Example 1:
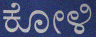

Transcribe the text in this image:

ಕೋಳಿ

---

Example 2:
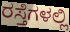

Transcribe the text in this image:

ರಸ್ತೆಗಳಲ್ಲಿ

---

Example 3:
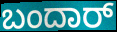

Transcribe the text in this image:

ಬಂದಾರ್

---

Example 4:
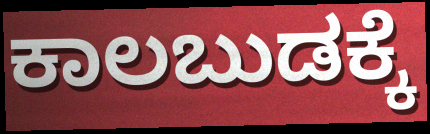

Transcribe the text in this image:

ಕಾಲಬುಡಕ್ಕೆ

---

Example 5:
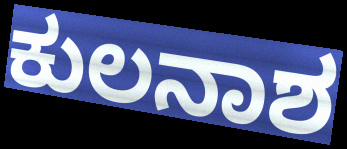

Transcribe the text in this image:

ಕುಲನಾಶ